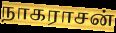
நாகராசன்